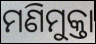
ମଣିମୁକ୍ତା